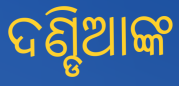
ଦଣ୍ଡିଆଙ୍କ